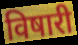
विषारी